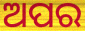
ଅପର